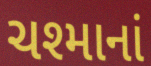
ચશ્માનાં